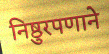
निष्ठुरपणाने